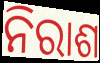
ନିରାଶ